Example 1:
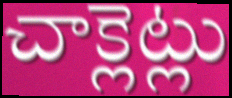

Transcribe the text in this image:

చాక్లెట్లు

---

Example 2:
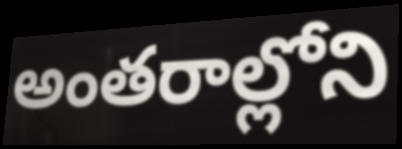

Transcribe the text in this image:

అంతరాల్లోని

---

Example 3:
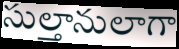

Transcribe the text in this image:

సుల్తానులాగా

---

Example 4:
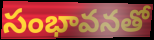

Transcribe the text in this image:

సంభావనతో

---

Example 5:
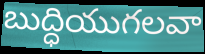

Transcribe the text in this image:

బుద్ధియుగలవా